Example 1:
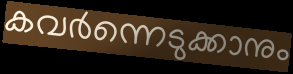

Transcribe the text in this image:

കവർന്നെടുക്കാനും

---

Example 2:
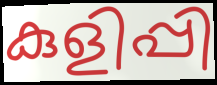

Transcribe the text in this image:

കുളിപ്പി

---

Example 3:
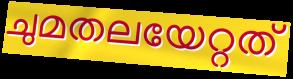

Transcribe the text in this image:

ചുമതലയേറ്റത്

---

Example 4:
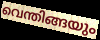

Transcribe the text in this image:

വെന്തിങ്ങയും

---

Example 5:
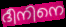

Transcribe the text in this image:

ദീനിനെ